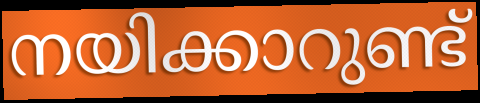
നയിക്കാറുണ്ട്